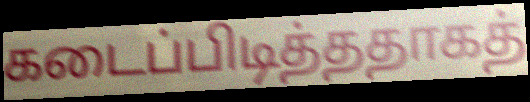
கடைப்பிடித்ததாகத்